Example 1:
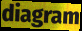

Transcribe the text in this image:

diagram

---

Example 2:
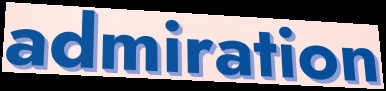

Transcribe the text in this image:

admiration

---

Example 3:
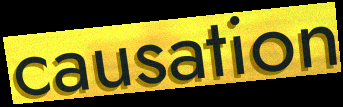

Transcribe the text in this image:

causation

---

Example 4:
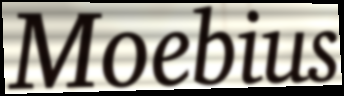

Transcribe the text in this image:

Moebius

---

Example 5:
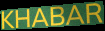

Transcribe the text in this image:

KHABAR